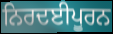
ਨਿਰਦਈਪੂਰਨ